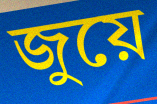
জুয়ে